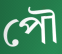
পৌ